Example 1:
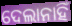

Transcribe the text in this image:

ଦେଲାନାହିଁ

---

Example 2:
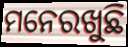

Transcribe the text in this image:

ମନେରଖୁଛି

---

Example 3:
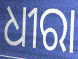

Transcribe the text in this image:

ଧୀରା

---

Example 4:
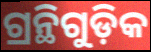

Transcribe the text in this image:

ଗ୍ରନ୍ଥିଗୁଡ଼ିକ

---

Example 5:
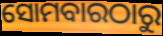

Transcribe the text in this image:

ସୋମବାରଠାରୁ